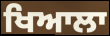
ਖਿਆਲਾ